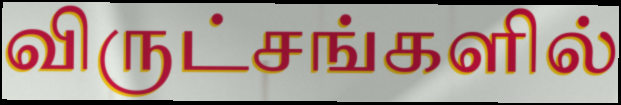
விருட்சங்களில்